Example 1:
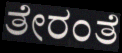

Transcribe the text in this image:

ತೇರಂತೆ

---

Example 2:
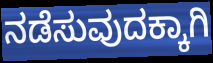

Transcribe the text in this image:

ನಡೆಸುವುದಕ್ಕಾಗಿ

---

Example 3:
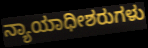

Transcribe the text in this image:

ನ್ಯಾಯಾಧೀಶರುಗಳು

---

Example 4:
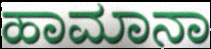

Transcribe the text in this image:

ಹಾಮಾನಾ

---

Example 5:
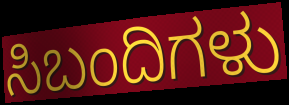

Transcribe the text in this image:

ಸಿಬಂದಿಗಳು